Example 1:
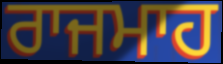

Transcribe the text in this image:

ਰਾਜਮਾਹ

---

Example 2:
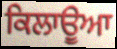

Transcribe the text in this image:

ਕਿਲਾਊਆ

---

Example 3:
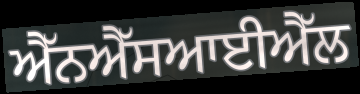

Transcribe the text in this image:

ਐੱਨਐੱਸਆਈਐੱਲ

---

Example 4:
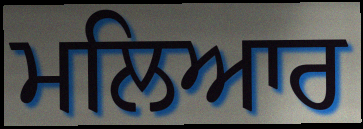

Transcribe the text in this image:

ਮਲਿਆਰ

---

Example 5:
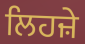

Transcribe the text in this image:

ਲਿਹਜ਼ੇ